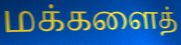
மக்களைத்